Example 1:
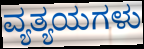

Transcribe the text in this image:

ವ್ಯತ್ಯಯಗಳು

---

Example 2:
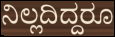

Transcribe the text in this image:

ನಿಲ್ಲದಿದ್ದರೂ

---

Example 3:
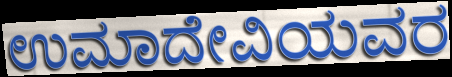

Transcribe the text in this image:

ಉಮಾದೇವಿಯವರ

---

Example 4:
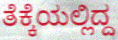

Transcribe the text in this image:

ತೆಕ್ಕೆಯಲ್ಲಿದ್ದ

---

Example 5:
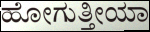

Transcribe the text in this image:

ಹೋಗುತ್ತೀಯಾ